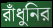
রাঁধুনির